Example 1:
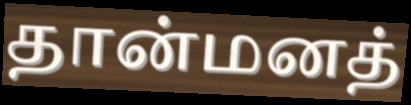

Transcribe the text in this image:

தான்மனத்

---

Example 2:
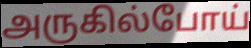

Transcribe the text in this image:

அருகில்போய்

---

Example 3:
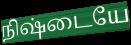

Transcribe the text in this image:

நிஷ்டையே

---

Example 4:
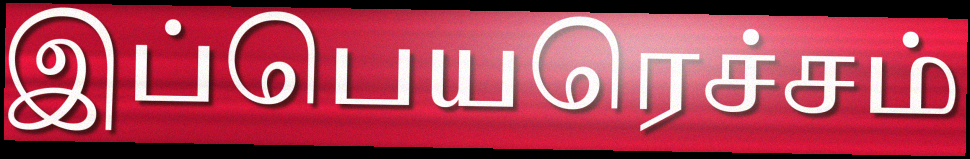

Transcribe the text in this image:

இப்பெயரெச்சம்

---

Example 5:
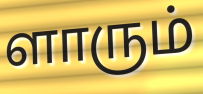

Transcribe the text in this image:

ளாரும்